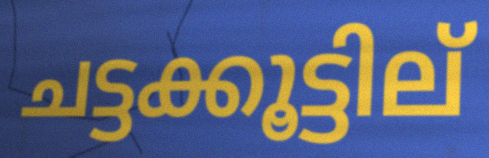
ചട്ടക്കൂട്ടില്